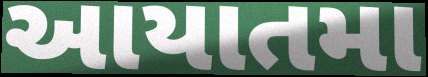
આયાતમા